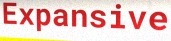
Expansive